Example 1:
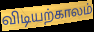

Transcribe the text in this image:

விடியற்காலம்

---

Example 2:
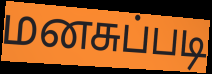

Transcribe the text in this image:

மனசுப்படி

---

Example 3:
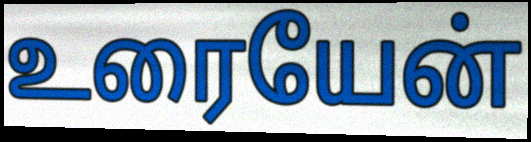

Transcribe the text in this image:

உரையேன்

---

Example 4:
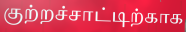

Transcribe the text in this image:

குற்றச்சாட்டிற்காக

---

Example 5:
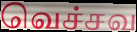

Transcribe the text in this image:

வெச்சவ